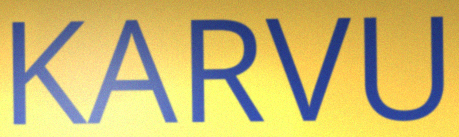
KARVU